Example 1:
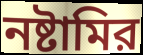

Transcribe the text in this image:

নষ্টামির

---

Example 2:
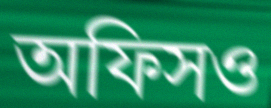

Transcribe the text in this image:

অফিসও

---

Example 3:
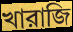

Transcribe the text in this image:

খারাজি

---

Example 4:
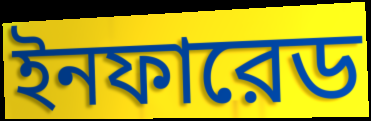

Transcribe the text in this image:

ইনফারেড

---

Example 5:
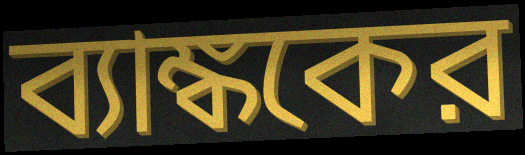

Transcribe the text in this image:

ব্যাঙ্ককের